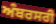
ਅੰਬਰਸਰੀ